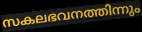
സകലഭവനത്തിന്നും